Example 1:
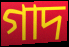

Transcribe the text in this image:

গাদ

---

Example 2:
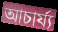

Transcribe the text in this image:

আচাৰ্য্য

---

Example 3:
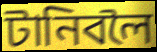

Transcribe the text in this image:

টানিবলৈ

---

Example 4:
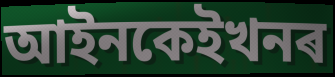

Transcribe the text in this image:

আইনকেইখনৰ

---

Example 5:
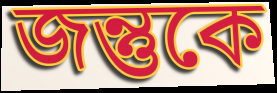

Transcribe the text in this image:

জন্তুকে